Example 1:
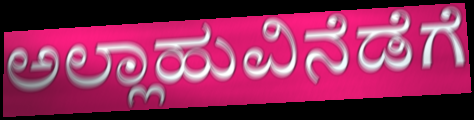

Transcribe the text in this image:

ಅಲ್ಲಾಹುವಿನೆಡೆಗೆ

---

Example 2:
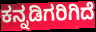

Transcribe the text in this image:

ಕನ್ನಡಿಗರಿಗಿದೆ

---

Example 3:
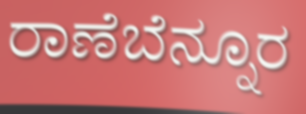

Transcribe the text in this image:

ರಾಣೆಬೆನ್ನೂರ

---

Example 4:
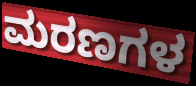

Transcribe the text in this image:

ಮರಣಗಳ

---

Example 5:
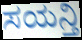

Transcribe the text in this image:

ಸಯನ್ತಿ